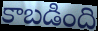
కాబడింది